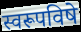
स्वरूपविषे